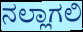
ನಲ್ಲಾಗಲಿ